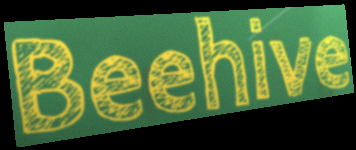
Beehive